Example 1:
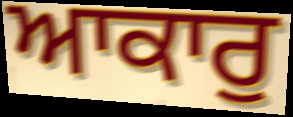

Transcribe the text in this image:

ਆਕਾਰੁ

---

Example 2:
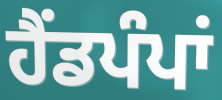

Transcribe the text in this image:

ਹੈਂਡਪੰਪਾਂ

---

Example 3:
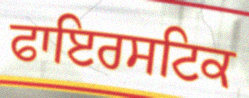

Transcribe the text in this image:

ਫਾਇਰਸਟਿਕ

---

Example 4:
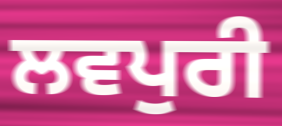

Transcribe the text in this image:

ਲਵਪੁਰੀ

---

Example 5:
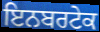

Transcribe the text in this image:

ਇਨਬਰਟੇਕ